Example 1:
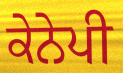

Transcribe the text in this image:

ਕੇਨੇਪੀ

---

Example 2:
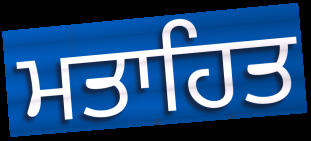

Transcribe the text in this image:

ਮਤਾਹਿਤ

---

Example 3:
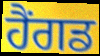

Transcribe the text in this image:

ਹੈਂਗਡ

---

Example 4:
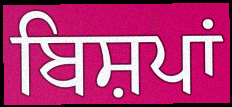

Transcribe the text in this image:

ਬਿਸ਼ਪਾਂ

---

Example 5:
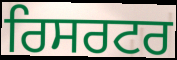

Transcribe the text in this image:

ਰਿਸਰਟਰ